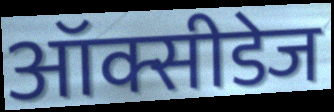
ऑक्सीडेज